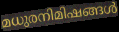
മധുരനിമിഷങ്ങൾ